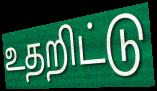
உதறிட்டு